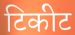
टिकीट